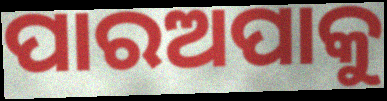
ପାରଅପାକୁ